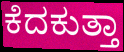
ಕೆದಕುತ್ತಾ